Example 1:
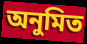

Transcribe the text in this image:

অনুমিত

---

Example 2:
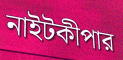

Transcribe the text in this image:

নাইটকীপার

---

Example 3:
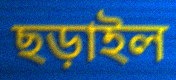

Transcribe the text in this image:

ছড়াইল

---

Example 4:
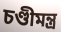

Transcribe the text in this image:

চণ্ডীমন্ত্র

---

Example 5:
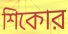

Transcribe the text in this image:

শিকোর